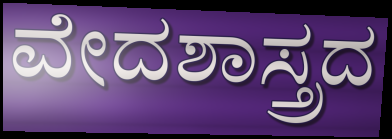
ವೇದಶಾಸ್ತ್ರದ